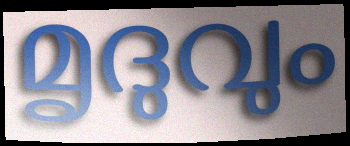
മൃദുവും